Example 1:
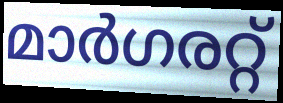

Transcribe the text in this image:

മാർഗരറ്റ്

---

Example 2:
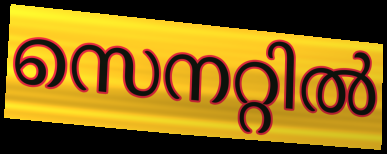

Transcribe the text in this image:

സെനറ്റിൽ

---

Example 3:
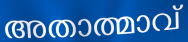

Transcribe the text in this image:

അതാത്മാവ്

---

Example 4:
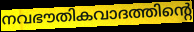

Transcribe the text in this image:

നവഭൗതികവാദത്തിന്റെ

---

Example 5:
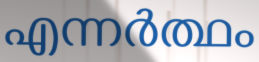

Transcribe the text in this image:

എന്നർത്ഥം